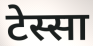
टेस्सा